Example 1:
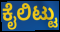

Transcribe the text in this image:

ಕೈಲಿಟ್ಟು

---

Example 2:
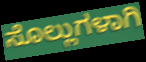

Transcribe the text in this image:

ಸೊಲ್ಲುಗಳಾಗಿ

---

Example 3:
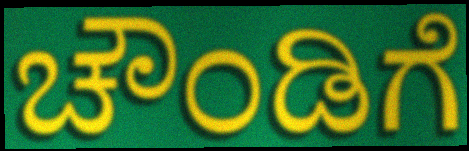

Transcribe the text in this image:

ಚೌಂಡಿಗೆ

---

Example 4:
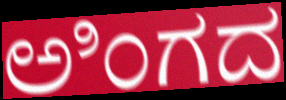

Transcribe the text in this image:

ಅಿಂಗದ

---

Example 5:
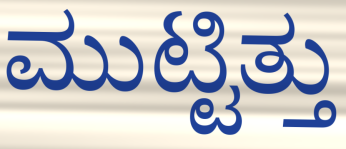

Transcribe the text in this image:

ಮುಟ್ಟಿತ್ತು